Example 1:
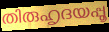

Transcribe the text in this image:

തിരുഹൃദയപ്പൂ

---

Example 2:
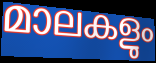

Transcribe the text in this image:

മാലകളും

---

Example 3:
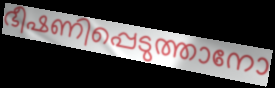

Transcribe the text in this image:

ഭീഷണിപ്പെടുത്താനോ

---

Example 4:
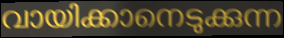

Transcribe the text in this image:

വായിക്കാനെടുക്കുന്ന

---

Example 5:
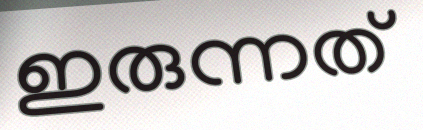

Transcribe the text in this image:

ഇരുന്നത്